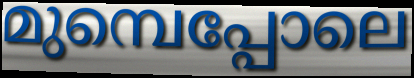
മുമ്പെപ്പോലെ